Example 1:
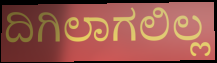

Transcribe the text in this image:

ದಿಗಿಲಾಗಲಿಲ್ಲ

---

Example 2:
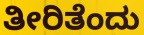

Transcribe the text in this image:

ತೀರಿತೆಂದು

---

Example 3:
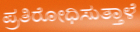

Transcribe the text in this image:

ಪ್ರತಿರೋಧಿಸುತ್ತಾಳೆ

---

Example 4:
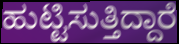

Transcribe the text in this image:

ಹುಟ್ಟಿಸುತ್ತಿದ್ದಾರೆ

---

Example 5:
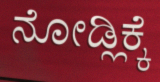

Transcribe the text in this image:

ನೋಡ್ಲಿಕ್ಕೆ